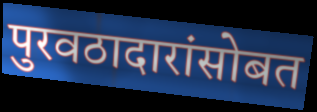
पुरवठादारांसोबत